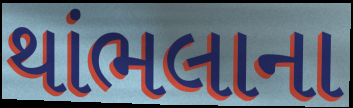
થાંભલાના